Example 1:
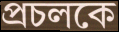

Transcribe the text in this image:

প্রচলকে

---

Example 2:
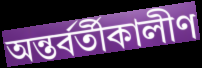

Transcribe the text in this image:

অন্তর্বর্তীকালীণ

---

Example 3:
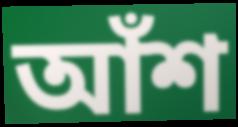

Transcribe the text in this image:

আঁশ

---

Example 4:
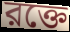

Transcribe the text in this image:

রক্তে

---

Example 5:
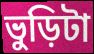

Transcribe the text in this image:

ভুড়িটা